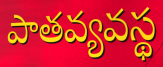
పాతవ్యవస్థ